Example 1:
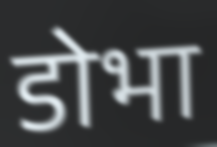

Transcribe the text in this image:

डोभा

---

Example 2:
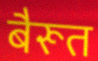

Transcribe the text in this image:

बैरूत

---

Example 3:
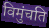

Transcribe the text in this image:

विमुंचति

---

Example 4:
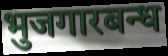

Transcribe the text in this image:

भुजगारबन्ध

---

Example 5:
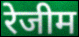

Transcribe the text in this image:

रेजीम